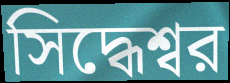
সিদ্ধেশ্বর